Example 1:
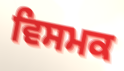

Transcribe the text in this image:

ਵਿਸਮਕ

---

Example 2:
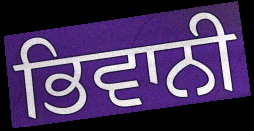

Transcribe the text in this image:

ਭਿਵਾਨੀ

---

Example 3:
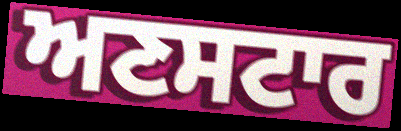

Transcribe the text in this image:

ਅਣਸਟਾਰ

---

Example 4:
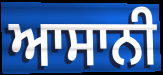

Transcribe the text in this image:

ਆਸਾਨੀ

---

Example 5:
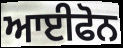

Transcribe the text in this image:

ਆਈਫੋਨ